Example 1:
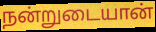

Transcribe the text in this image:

நன்றுடையான்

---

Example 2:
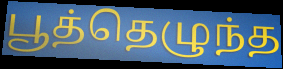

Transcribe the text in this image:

பூத்தெழுந்த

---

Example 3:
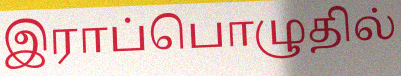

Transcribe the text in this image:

இராப்பொழுதில்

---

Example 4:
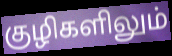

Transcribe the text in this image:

குழிகளிலும்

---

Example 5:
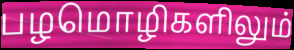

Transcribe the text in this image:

பழமொழிகளிலும்